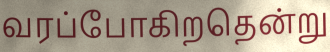
வரப்போகிறதென்று